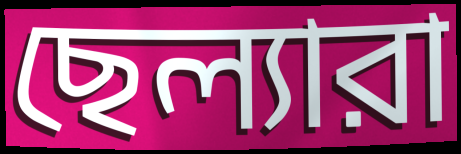
ছেল্যারা